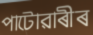
পাটোৱাৰীৰ